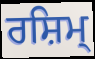
ਰਸ਼ਿਮ੍